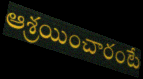
ఆశ్రయించారంటే